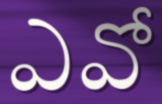
ఎవో